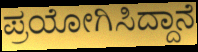
ಪ್ರಯೋಗಿಸಿದ್ದಾನೆ